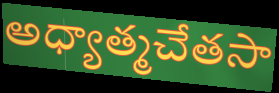
అధ్యాత్మచేతసా